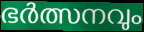
ഭർത്സനവും